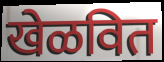
खेळवित